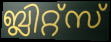
ബ്ലിറ്റ്സ്